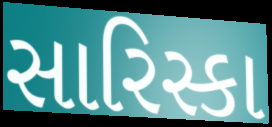
સારિસ્કા